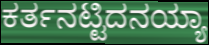
ಕರ್ತನಟ್ಟಿದನಯ್ಯಾ